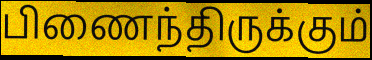
பிணைந்திருக்கும்